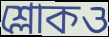
শ্লোকও